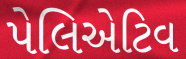
પેલિએટિવ